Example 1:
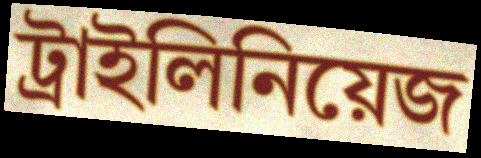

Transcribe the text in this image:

ট্রাইলিনিয়েজ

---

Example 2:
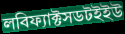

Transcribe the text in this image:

লবিফ্যাক্টসডটইইউ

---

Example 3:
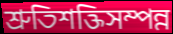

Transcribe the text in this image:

শ্রুতিশক্তিসম্পন্ন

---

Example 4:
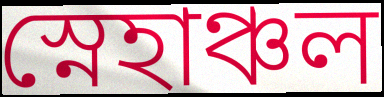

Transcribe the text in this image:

স্নেহাঞ্চল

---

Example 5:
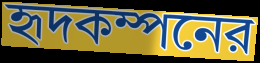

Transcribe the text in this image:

হৃদকম্পনের